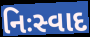
નિઃસ્વાદ